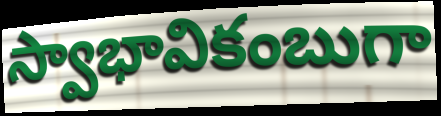
స్వాభావికంబుగా